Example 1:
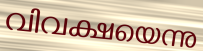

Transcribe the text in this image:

വിവക്ഷയെന്നു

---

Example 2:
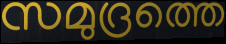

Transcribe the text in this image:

സമുദ്രത്തെ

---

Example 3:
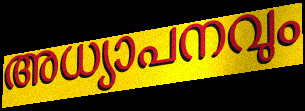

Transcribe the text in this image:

അധ്യാപനവും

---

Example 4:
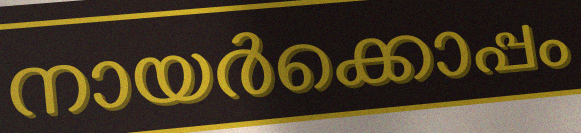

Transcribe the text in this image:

നായർക്കൊപ്പം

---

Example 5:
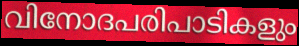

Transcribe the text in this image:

വിനോദപരിപാടികളും